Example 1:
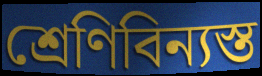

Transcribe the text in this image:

শ্রেণিবিন্যস্ত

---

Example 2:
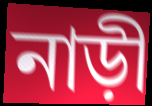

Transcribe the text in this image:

নাড়ী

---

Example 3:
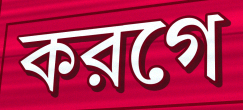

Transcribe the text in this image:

করগে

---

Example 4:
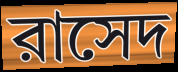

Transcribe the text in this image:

রাসেদ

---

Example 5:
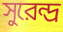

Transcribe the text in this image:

সুরেন্দ্র